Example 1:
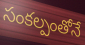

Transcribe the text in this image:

సంకల్పంతోనే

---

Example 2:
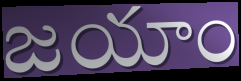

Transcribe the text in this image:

జయాం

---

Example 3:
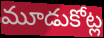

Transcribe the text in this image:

మూడుకోట్ల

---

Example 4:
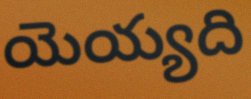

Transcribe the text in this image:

యెయ్యది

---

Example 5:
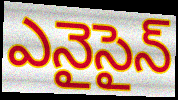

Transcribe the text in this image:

ఎనైసైన్